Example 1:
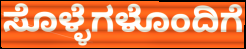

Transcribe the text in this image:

ಸೊಳ್ಳೆಗಳೊಂದಿಗೆ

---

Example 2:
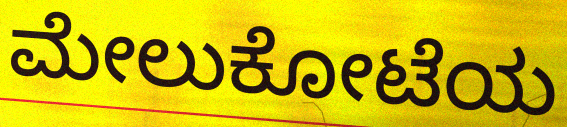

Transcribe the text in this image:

ಮೇಲುಕೋಟೆಯ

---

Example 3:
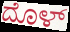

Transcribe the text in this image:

ದೊಳ್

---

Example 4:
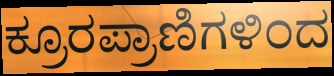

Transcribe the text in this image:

ಕ್ರೂರಪ್ರಾಣಿಗಳಿಂದ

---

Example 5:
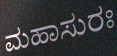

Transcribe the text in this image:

ಮಹಾಸುರಃ